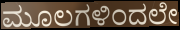
ಮೂಲಗಳಿಂದಲೇ